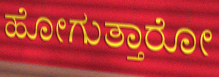
ಹೋಗುತ್ತಾರೋ